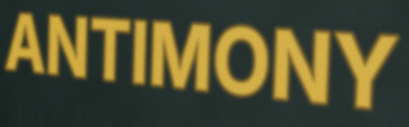
ANTIMONY